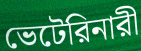
ভেটেরিনারী